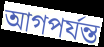
আগপর্যন্ত